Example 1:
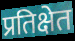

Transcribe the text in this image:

प्रतिक्षेत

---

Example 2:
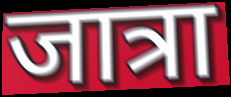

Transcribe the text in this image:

जात्रा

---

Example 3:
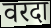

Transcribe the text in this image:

वरदा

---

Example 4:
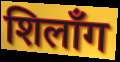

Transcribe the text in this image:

शिलाँग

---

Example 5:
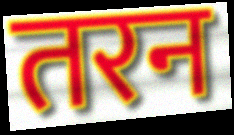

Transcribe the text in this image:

तरन